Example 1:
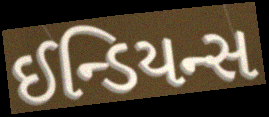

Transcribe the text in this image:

ઈન્ડિયન્સ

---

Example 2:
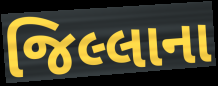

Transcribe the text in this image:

જિલ્લાના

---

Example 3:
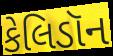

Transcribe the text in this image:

કેલિડૉન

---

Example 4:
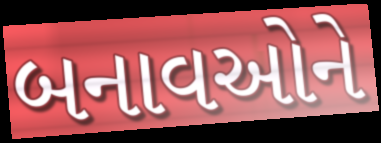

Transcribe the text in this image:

બનાવઓને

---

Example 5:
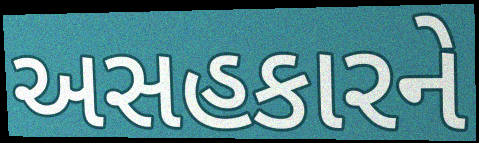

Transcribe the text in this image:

અસહકારને